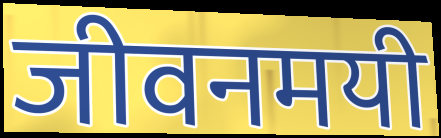
जीवनमयी